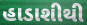
હાડાશીથી